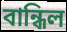
বান্ধিল